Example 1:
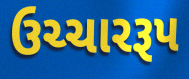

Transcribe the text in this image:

ઉચ્ચારરૂપ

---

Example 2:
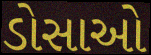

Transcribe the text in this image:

ડોસાઓ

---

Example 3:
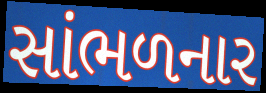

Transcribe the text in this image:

સાંભળનાર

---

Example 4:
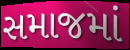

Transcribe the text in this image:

સમાજમાં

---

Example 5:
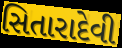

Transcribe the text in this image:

સિતારાદેવી